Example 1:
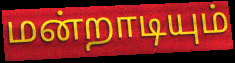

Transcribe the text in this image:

மன்றாடியும்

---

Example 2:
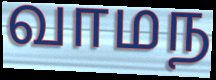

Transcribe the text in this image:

வாமந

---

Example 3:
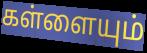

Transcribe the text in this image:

கள்ளையும்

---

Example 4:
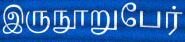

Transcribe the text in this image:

இருநூறுபேர்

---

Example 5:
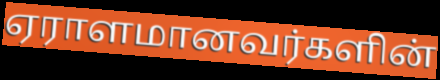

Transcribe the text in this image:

ஏராளமானவர்களின்